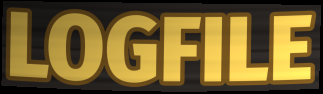
LOGFILE